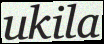
ukila